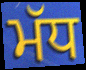
ਮੱਧ